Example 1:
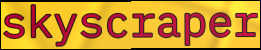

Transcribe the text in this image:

skyscraper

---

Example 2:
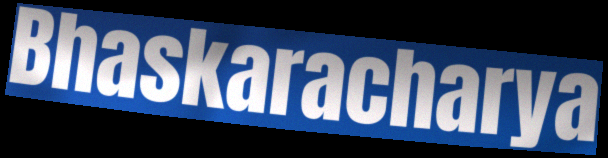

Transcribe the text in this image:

Bhaskaracharya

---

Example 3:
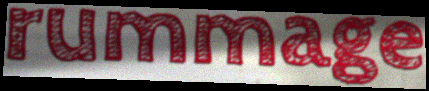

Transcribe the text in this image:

rummage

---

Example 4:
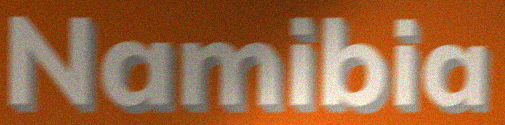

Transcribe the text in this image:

Namibia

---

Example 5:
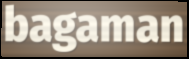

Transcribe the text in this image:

bagaman